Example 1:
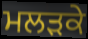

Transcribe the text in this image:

ਮਲੜਕੇ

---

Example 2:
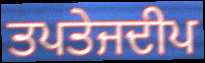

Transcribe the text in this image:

ਤਪਤੇਜਦੀਪ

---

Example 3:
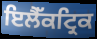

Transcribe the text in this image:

ਇਲੈੱਕਟ੍ਰਿਕ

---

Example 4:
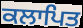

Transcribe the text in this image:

ਕਲਾਪਿਤ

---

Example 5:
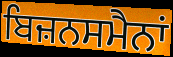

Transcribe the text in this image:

ਬਿਜ਼ਨਸਮੈਨਾਂ